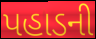
પહાડની